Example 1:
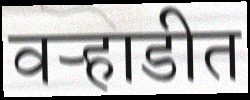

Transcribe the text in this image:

वऱ्हाडीत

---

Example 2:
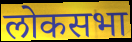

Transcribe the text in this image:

लोकसभा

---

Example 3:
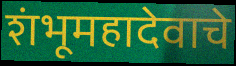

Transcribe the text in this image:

शंभूमहादेवाचे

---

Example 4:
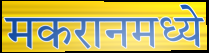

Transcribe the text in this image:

मकरानमध्ये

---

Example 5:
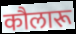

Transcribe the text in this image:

कौलारू